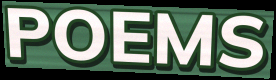
POEMS